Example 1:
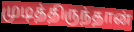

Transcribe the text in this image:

முடித்திருந்தான்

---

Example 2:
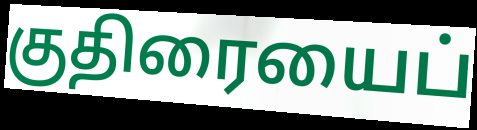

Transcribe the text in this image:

குதிரையைப்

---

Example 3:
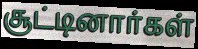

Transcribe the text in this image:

சூட்டினார்கள்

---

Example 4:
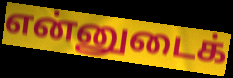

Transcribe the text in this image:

என்னுடைக்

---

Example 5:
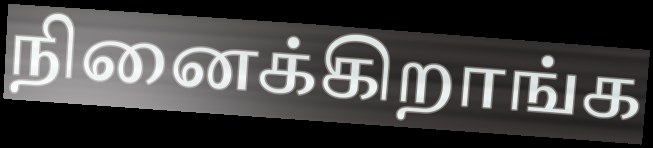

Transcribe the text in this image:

நினைக்கிறாங்க